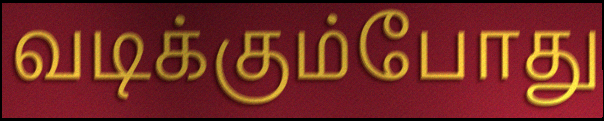
வடிக்கும்போது